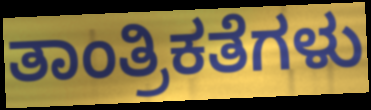
ತಾಂತ್ರಿಕತೆಗಳು